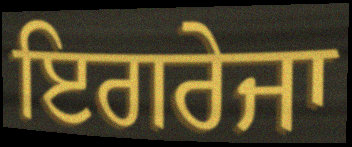
ਇਗਰੇਜਾ